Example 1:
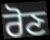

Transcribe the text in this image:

ਰੋਣ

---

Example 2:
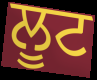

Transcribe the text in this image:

ਲੂਟ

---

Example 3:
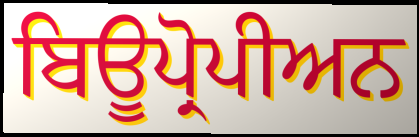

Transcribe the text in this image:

ਬਿਊਪ੍ਰੋਪੀਅਨ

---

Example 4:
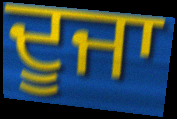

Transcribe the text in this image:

ਦੂਜਾ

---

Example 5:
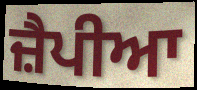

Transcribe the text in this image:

ਜ਼ੈਪੀਆ